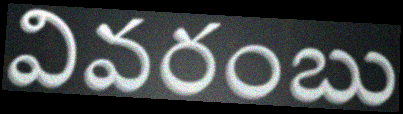
వివరంబు